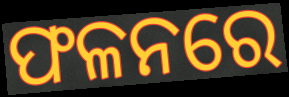
ଫଳନରେ